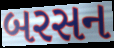
બરસન